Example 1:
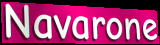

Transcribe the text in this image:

Navarone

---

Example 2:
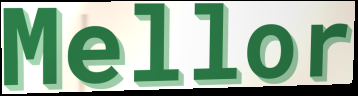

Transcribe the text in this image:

Mellor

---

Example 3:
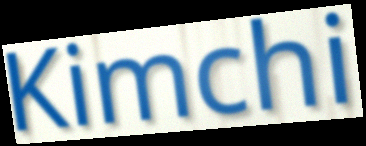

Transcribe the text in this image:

Kimchi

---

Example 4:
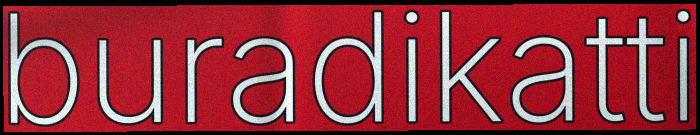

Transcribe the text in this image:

buradikatti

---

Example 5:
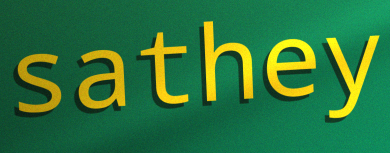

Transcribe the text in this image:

sathey